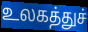
உலகத்துச்